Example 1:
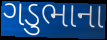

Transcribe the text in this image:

ગડુભાના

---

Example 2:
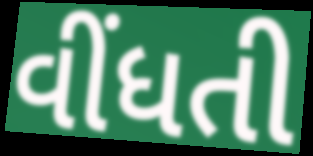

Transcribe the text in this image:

વીંધતી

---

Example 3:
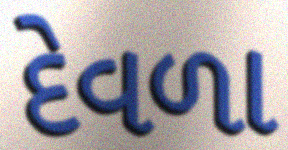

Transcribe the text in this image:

દેવળા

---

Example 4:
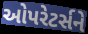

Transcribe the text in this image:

ઓપરેટર્સને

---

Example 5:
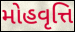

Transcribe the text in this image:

મોહવૃત્તિ